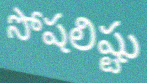
సోషలిష్టు